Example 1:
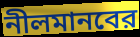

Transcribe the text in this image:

নীলমানবের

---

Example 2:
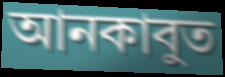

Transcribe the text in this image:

আনকাবুত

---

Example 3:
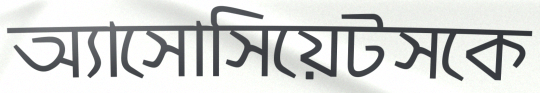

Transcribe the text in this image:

অ্যাসোসিয়েটসকে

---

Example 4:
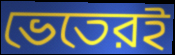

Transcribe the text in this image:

ভেতেরই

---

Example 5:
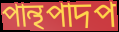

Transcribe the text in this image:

পান্থপাদপ